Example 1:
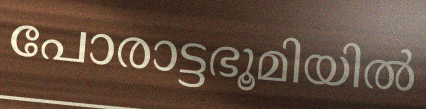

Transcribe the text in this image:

പോരാട്ടഭൂമിയിൽ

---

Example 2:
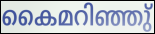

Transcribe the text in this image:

കൈമറിഞ്ഞു്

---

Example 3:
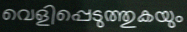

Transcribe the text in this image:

വെളിപ്പെടുത്തുകയും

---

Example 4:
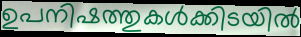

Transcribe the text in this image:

ഉപനിഷത്തുകൾക്കിടയിൽ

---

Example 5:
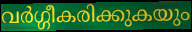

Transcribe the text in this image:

വർഗ്ഗീകരിക്കുകയും